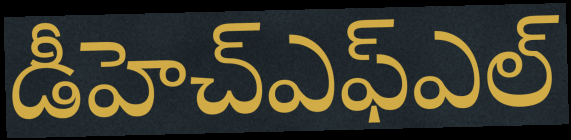
డీహెచ్ఎఫ్ఎల్